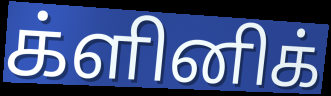
க்ளினிக்